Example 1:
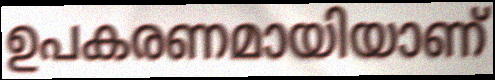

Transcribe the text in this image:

ഉപകരണമായിയാണ്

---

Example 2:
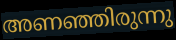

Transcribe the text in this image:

അണഞ്ഞിരുന്നു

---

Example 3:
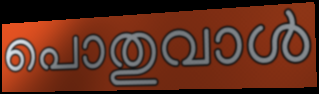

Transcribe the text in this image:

പൊതുവാൾ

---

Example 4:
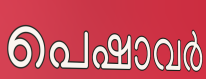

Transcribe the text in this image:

പെഷാവർ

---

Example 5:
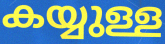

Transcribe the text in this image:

കയ്യുള്ള